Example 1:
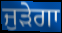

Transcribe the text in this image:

ਜੁੜੇਗਾ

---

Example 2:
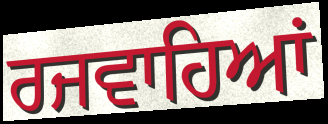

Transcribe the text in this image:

ਰਜਵਾਹਿਆਂ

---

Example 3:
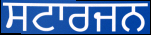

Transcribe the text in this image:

ਸਟਾਰਜਨ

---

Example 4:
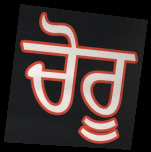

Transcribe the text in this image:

ਚੋਰੂ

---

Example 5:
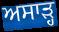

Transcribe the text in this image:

ਅਸਾੜ੍ਹ